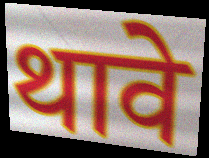
थावे